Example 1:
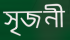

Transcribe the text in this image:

সৃজনী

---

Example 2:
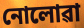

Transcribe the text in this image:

নোলোৱা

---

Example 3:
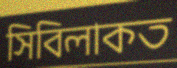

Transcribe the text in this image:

সিবিলাকত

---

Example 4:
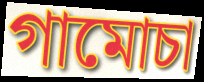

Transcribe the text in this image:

গামোচা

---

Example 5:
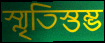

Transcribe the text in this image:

স্মৃতিস্তম্ভ